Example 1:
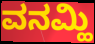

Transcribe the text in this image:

ವನಮ್ಹಿ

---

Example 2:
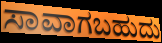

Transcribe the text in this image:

ಸಾವಾಗಬಹುದು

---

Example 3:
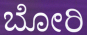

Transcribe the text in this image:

ಬೋರಿ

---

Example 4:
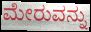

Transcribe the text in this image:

ಮೇರುವನ್ನು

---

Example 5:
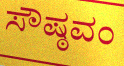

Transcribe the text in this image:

ಸೌಷ್ಠವಂ